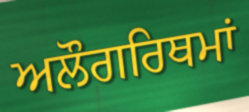
ਅਲੌਗਰਿਥਮਾਂ